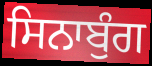
ਸਿਨਾਬੁੰਗ